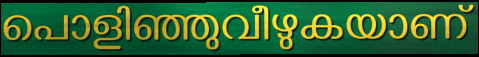
പൊളിഞ്ഞുവീഴുകയാണ്